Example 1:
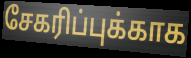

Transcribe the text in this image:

சேகரிப்புக்காக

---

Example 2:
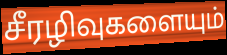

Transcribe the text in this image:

சீரழிவுகளையும்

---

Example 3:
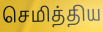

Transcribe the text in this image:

செமித்திய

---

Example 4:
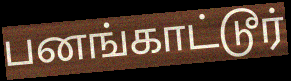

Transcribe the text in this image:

பனங்காட்டூர்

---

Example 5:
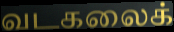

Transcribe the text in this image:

வடகலைக்